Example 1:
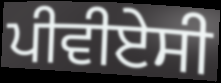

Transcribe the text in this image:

ਪੀਵੀਏਸੀ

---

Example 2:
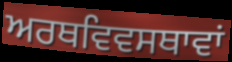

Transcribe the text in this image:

ਅਰਥਵਿਵਸਥਾਵਾਂ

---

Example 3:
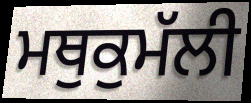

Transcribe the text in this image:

ਮਥੁਕੁਮੱਲੀ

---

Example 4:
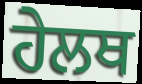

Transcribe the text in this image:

ਹੇਲਥ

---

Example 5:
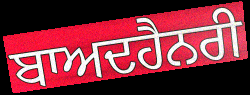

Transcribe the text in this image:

ਬਾਅਦਹੈਨਰੀ